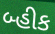
બ્હીક